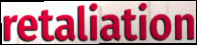
retaliation